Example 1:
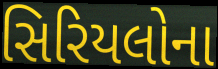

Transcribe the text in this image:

સિરિયલોના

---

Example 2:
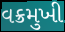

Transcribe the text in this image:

વક્રમુખી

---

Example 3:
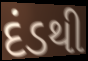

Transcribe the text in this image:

દંડથી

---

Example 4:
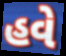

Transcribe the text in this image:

હવે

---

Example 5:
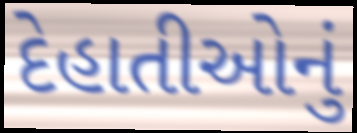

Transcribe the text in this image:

દેહાતીઓનું